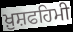
ਖ਼ੁਸ਼ਫਹਿਮੀ